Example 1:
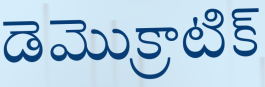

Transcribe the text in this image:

డెమొక్రాటిక్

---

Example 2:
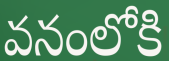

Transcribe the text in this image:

వనంలోకి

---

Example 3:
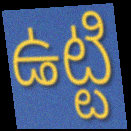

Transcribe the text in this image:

ఉట్టి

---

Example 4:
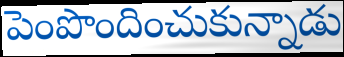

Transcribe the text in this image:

పెంపొందించుకున్నాడు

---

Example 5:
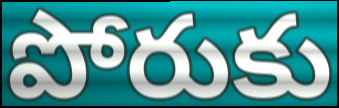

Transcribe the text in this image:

పోరుకు